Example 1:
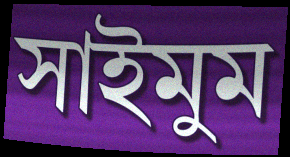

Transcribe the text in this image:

সাইমুম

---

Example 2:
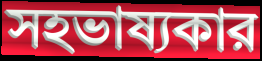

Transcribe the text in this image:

সহভাষ্যকার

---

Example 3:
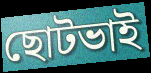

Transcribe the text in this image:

ছোটভাই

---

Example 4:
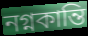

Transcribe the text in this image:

নগ্নকান্তি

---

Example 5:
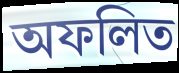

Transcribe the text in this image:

অফলিত